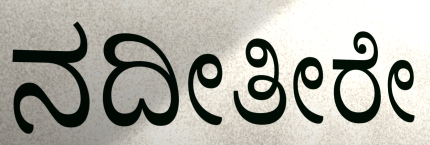
ನದೀತೀರೇ